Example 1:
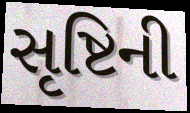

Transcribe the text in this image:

સૃષ્ટિની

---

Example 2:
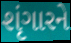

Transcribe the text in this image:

શૃંગારને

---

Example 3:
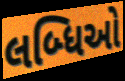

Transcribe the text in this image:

લબ્ધિઓ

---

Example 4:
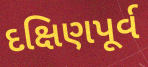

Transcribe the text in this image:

દક્ષિણપૂર્વ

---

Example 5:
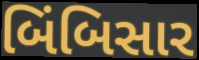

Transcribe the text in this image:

બિંબિસાર